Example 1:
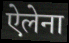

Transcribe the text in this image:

ऐलेना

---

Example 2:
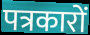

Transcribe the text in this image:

पत्रकारों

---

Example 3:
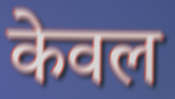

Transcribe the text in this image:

केवल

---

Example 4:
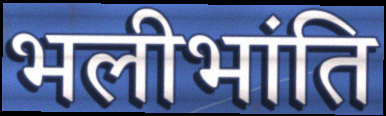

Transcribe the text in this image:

भलीभांति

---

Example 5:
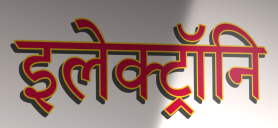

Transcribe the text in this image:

इलेक्ट्रॉनि